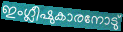
ഇംഗ്ലീഷുകാരനോടു്